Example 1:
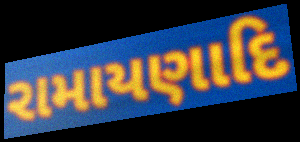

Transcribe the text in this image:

રામાયણાદિ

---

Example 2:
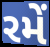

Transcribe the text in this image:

રમેં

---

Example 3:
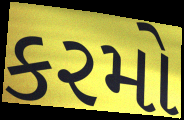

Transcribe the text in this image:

કરમો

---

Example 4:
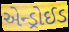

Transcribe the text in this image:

એન્ડ્રોઈડ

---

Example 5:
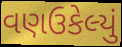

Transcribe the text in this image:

વણઉકેલ્યું